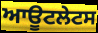
ਆਊਟਲੇਟਸ